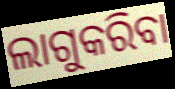
ଲାଗୁକରିବା